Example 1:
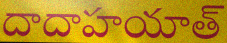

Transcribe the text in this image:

దాదాహయాత్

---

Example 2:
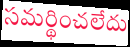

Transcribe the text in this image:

సమర్థించలేదు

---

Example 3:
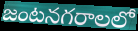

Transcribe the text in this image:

జంటనగరాలలో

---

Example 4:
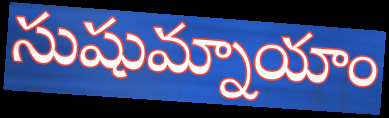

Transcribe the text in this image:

సుషుమ్నాయాం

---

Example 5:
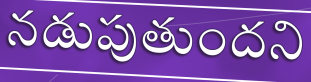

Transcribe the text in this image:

నడుపుతుందని